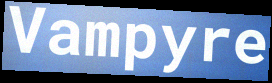
Vampyre